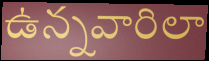
ఉన్నవారిలా